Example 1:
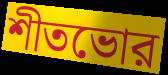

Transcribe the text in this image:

শীতভোর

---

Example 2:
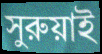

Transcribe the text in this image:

সুরুয়াই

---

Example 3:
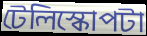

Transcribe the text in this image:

টেলিস্কোপটা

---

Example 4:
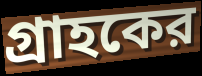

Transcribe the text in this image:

গ্রাহকের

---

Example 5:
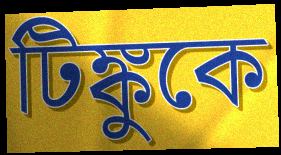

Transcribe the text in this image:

টিঙ্কুকে